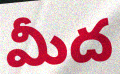
మీద